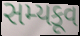
સમ્યકૂવ